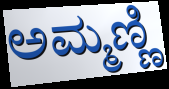
ಅಮ್ಮಣ್ಣಿ